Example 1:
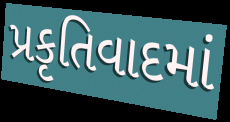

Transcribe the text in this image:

પ્રકૃતિવાદમાં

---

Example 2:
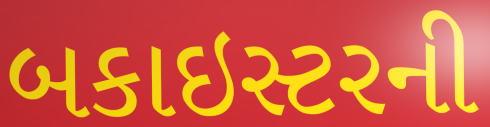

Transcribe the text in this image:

બકાઇસ્ટરની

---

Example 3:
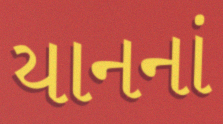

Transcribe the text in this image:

યાનનાં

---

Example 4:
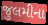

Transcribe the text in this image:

જુલમીના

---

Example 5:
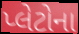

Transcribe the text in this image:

પ્લેટોના